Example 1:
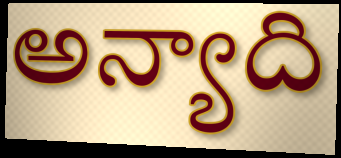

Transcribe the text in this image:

అన్యాది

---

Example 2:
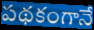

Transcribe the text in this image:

పథకంగానే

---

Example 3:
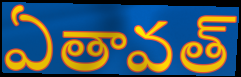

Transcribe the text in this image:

ఏతావత్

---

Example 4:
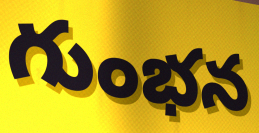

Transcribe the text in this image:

గుంభన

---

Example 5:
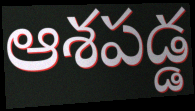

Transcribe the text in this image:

ఆశపడ్డ